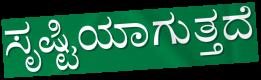
ಸೃಷ್ಟಿಯಾಗುತ್ತದೆ